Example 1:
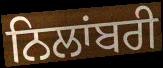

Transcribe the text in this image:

ਨਿਲਾਂਬਰੀ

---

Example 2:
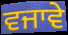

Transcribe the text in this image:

ਵਜਾਵੇ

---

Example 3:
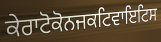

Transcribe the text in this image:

ਕੇਰਾਟੋਕੋਨਜਕਟਿਵਾਇਟਿਸ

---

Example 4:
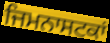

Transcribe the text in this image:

ਜਿਮਨਾਸਟਕਾਂ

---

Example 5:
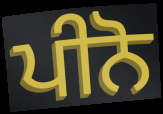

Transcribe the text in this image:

ਪੀਨੋ